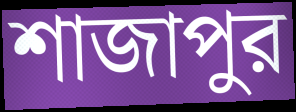
শাজাপুর